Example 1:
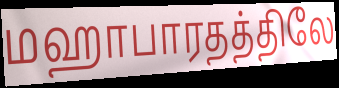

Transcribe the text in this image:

மஹாபாரதத்திலே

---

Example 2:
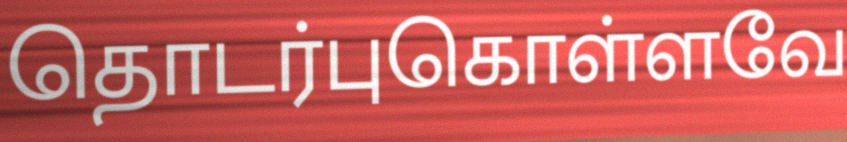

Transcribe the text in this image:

தொடர்புகொள்ளவே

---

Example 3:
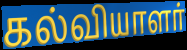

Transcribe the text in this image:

கல்வியாளர்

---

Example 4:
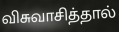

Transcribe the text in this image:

விசுவாசித்தால்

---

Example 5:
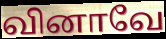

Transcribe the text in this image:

வினாவே